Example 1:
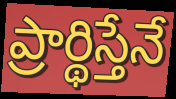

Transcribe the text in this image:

ప్రార్థిస్తేనే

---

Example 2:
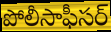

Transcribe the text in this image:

పోలీసాఫీసర్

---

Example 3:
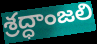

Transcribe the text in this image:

శ్రద్ధాంజలి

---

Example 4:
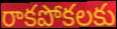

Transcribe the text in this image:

రాకపోకలకు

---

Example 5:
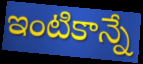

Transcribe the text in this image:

ఇంటికాన్నే